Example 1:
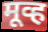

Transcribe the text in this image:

मूव्ह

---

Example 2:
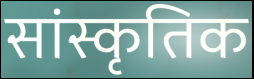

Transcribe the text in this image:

सांस्‍कृतिक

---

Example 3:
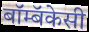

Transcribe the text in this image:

बॉम्बॅकेसी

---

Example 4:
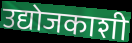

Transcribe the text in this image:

उद्योजकाशी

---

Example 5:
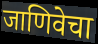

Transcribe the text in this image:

जाणिवेचा